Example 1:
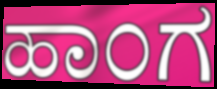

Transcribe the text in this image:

ಹಾಂಗ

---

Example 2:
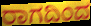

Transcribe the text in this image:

ರಾಗದಿಂದ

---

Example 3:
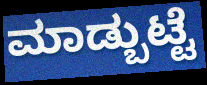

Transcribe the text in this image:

ಮಾಡ್ಬುಟ್ಟೆ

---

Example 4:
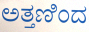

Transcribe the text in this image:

ಅತ್ತಣಿಂದ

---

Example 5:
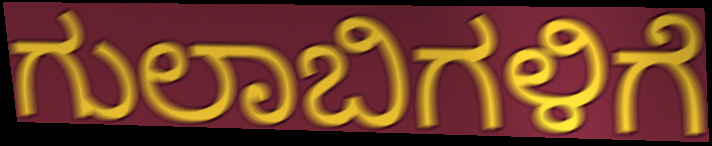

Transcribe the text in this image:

ಗುಲಾಬಿಗಳಿಗೆ